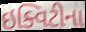
ઇક્વિટીના